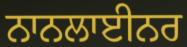
ਨਾਨਲਾਈਨਰ